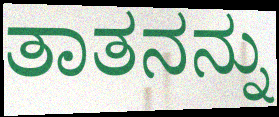
ತಾತನನ್ನು